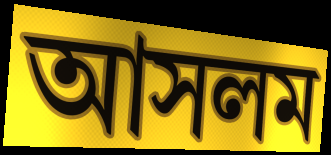
আসলম